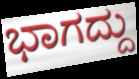
ಭಾಗದ್ದು